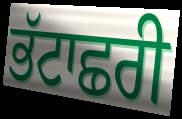
ਭੱਟਾਛਰੀ